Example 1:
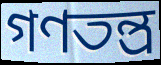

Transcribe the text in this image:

গণতন্ত্ৰ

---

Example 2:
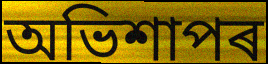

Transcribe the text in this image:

অভিশাপৰ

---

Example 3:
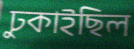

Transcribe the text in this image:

ঢুকাইছিল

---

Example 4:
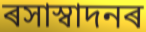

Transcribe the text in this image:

ৰসাস্বাদনৰ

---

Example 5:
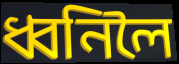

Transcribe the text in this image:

ধ্বনিলৈ